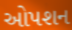
ઓપશન